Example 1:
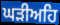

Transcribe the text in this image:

ਘੜੀਅਹਿ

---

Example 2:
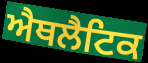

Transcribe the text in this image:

ਐਥਲੈਟਿਕ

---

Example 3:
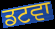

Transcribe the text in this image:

ਡਟਵਾ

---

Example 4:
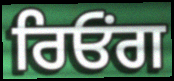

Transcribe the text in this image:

ਰਿਓਂਗ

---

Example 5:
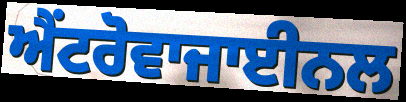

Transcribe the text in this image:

ਐਂਟਰੋਵਾਜਾਈਨਲ